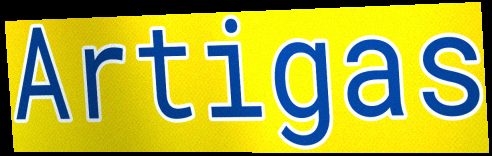
Artigas